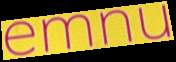
emnu